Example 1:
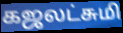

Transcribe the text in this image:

கஜலட்சுமி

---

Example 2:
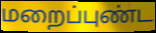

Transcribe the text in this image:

மறைப்புண்ட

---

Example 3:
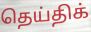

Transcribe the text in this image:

தெய்திக்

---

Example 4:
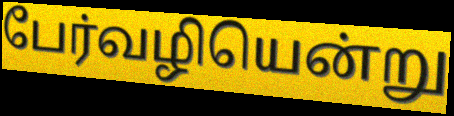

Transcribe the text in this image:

பேர்வழியென்று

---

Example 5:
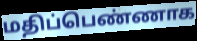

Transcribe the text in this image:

மதிப்பெண்ணாக